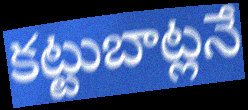
కట్టుబాట్లనే